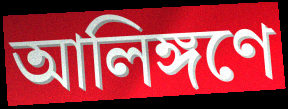
আলিঙ্গণে